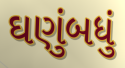
ઘણુંબધું